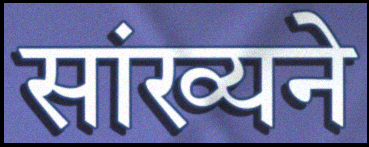
सांख्यने